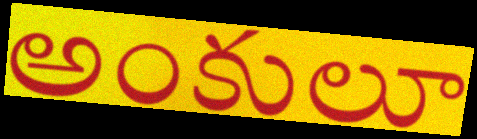
అంకులూ